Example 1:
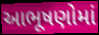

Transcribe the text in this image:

આભૂષણોમાં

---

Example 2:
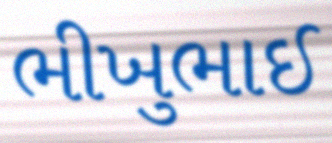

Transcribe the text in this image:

ભીખુભાઈ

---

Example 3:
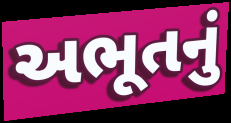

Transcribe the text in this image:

અભૂતનું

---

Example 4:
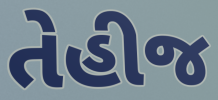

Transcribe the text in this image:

તેહીજ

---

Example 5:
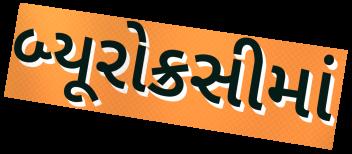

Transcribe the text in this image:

બ્યૂરોક્રસીમાં